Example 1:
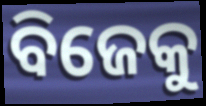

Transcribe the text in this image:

ବିଜେକୁ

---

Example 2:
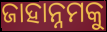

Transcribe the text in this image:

ଜାହାନ୍ନମକୁ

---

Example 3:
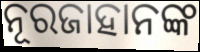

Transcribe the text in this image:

ନୂରଜାହାନଙ୍କ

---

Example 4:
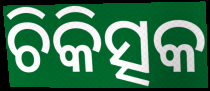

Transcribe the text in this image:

ଚିକିତ୍ସକ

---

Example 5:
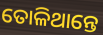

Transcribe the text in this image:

ତୋଳିଥାନ୍ତେ